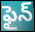
ఫైన్